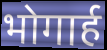
भोगार्ह